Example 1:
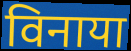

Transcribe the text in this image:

विनाया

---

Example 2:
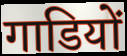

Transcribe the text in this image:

गाडियों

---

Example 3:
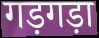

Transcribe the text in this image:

गड़गड़ा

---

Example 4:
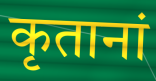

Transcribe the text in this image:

कृतानां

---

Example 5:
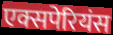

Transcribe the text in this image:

एक्सपेरियंस